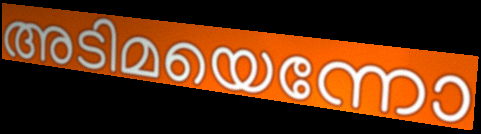
അടിമയെന്നോ